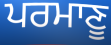
ਪਰਮਾਣੂ